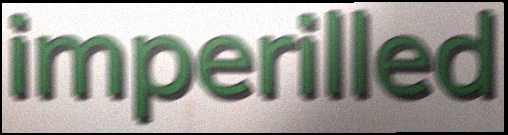
imperilled